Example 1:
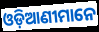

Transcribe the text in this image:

ଓଡ଼ିଆଣୀମାନେ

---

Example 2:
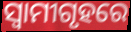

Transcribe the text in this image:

ସ୍ଵାମୀଗୃହରେ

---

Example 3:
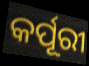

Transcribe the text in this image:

କର୍ପୂରୀ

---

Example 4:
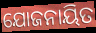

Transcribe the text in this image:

ଯୋଜନାୟିତ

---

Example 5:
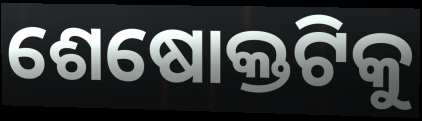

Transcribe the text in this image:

ଶେଷୋକ୍ତଟିକୁ